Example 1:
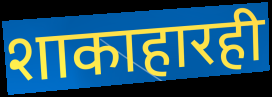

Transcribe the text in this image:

शाकाहारही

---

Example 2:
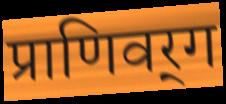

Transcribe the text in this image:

प्राणिवर्ग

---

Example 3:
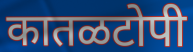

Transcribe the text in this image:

कातळटोपी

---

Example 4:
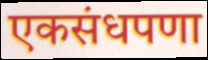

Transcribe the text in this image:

एकसंधपणा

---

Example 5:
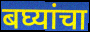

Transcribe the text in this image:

बघ्यांचा